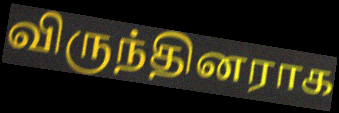
விருந்தினராக